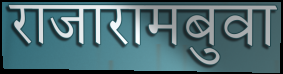
राजारामबुवा